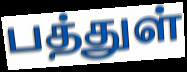
பத்துள்